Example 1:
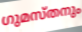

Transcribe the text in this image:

ഗുമസ്തനും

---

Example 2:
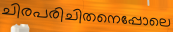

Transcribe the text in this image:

ചിരപരിചിതനെപ്പോലെ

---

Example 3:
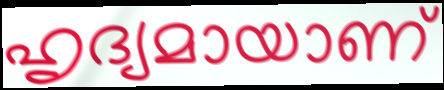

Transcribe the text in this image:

ഹൃദ്യമായാണ്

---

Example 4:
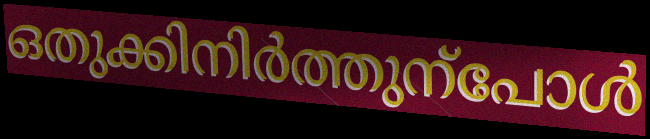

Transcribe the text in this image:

ഒതുക്കിനിർത്തുന്പോൾ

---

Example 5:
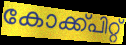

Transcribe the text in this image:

കോക്ക്പിറ്റ്